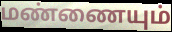
மண்ணையும்